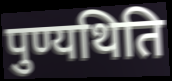
पुण्यथिति